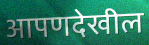
आपणदेखील